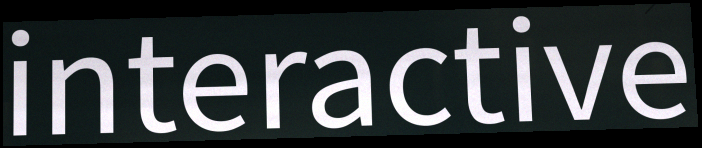
interactive